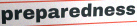
preparedness